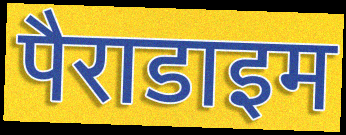
पैराडाइम